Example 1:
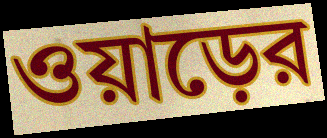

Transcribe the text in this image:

ওয়াড়ের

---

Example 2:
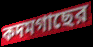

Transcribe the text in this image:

কদমগাছের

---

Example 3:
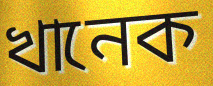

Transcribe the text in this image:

খানেক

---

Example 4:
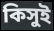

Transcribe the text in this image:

কিসুই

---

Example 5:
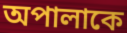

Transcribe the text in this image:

অপালাকে